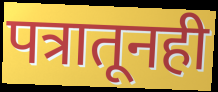
पत्रातूनही